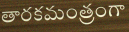
తారకమంత్రంగా